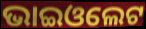
ଭାଇଓଲେଟ